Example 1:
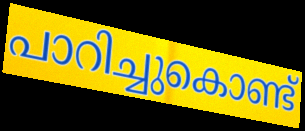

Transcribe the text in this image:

പാറിച്ചുകൊണ്ട്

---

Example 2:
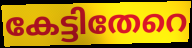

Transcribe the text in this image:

കേട്ടിതേറെ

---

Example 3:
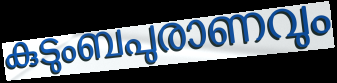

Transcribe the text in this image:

കുടുംബപുരാണവും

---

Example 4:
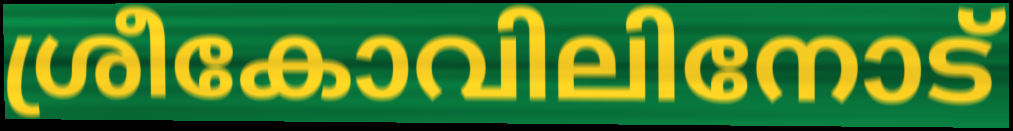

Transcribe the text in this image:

ശ്രീകോവിലിനോട്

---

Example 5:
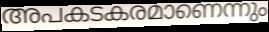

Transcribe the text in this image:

അപകടകരമാണെന്നും